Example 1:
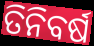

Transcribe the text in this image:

ତିନିବର୍ଷ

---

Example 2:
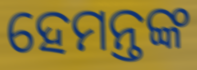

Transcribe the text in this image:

ହେମନ୍ତଙ୍କ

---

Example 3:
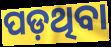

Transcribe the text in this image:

ପଡ଼ଥିବା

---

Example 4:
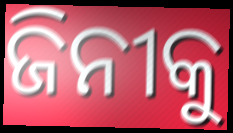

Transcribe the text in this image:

ଜିନୀକୁ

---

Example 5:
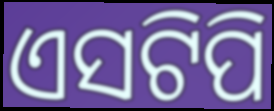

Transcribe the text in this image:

ଏସଟିପି